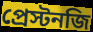
প্রেস্টনজি